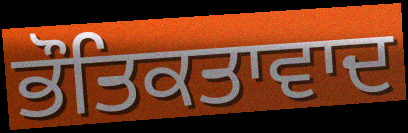
ਭੌਤਿਕਤਾਵਾਦ